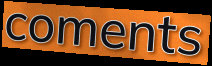
coments